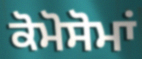
ਕੋਮੋਸੋਮਾਂ